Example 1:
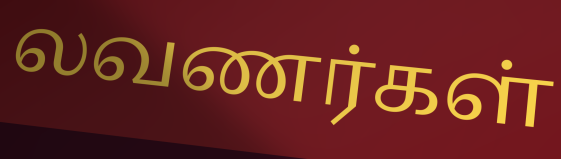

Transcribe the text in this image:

லவணர்கள்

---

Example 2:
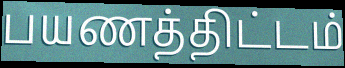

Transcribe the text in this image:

பயணத்திட்டம்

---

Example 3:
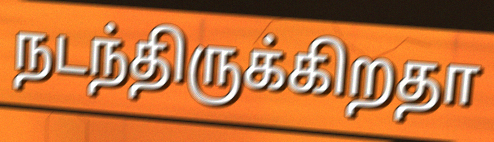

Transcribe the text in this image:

நடந்திருக்கிறதா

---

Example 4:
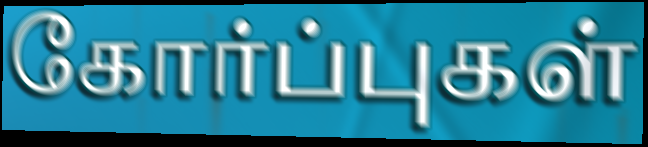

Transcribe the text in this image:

கோர்ப்புகள்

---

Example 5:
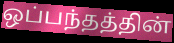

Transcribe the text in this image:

ஒப்பந்தத்தின்